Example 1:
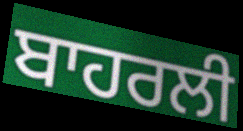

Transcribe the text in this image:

ਬਾਹਰਲੀ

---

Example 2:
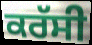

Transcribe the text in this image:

ਕਰੱਸੀ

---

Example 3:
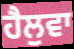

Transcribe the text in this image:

ਹੈਲੁਵਾ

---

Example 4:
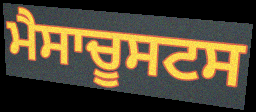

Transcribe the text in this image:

ਮੈਸਾਚੂਸਟਸ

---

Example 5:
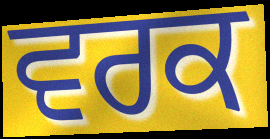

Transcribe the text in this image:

ਵਰਕ